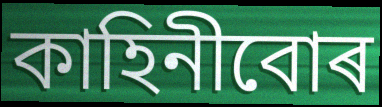
কাহিনীবোৰ